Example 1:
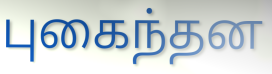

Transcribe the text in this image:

புகைந்தன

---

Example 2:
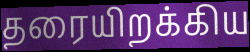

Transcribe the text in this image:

தரையிறக்கிய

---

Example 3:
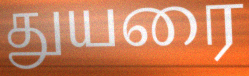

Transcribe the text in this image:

துயரை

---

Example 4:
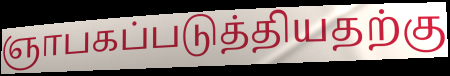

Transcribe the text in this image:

ஞாபகப்படுத்தியதற்கு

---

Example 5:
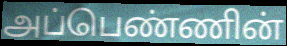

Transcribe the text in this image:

அப்பெண்ணின்